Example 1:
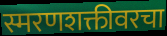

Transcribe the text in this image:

स्मरणशक्तीवरचा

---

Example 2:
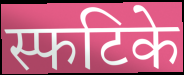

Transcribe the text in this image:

स्फटिके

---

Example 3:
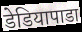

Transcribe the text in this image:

डेडियापाडा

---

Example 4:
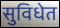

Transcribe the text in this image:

सुविधेत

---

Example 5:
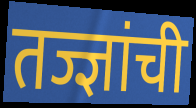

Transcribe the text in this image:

तज्ज्ञांची